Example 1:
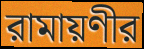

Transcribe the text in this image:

রামায়ণীর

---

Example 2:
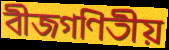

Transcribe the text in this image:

বীজগণিতীয়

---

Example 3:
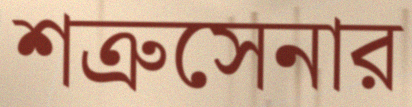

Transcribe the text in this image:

শত্রুসেনার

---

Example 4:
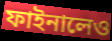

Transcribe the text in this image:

ফাইনালেও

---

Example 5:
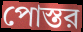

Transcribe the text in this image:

পোস্তর